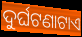
ଦୁର୍ଘଟଣାଟାଏ